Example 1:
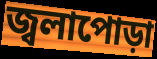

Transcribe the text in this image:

জ্বলাপোড়া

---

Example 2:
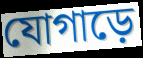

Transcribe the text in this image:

যোগাড়ে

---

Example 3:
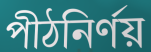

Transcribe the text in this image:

পীঠনির্ণয়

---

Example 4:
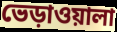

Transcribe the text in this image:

ভেড়াওয়ালা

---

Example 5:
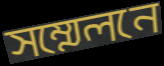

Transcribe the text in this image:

সম্মেলনে